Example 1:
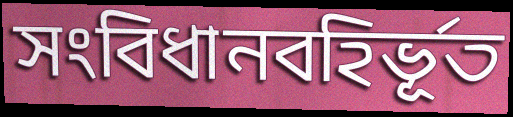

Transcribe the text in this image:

সংবিধানবহির্ভূত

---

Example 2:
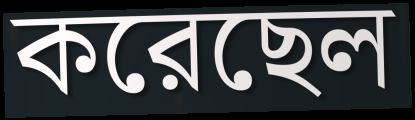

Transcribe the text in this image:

করেছেল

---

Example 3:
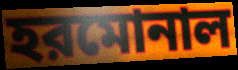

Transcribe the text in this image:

হরমোনাল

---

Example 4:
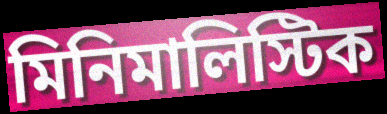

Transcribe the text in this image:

মিনিমালিস্টিক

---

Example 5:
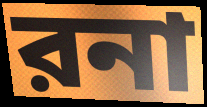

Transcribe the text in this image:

রনা